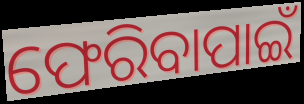
ଫେରିବାପାଇଁ